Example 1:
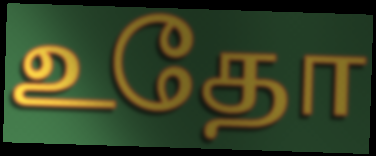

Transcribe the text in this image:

உதோ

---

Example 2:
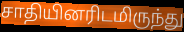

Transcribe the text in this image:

சாதியினரிடமிருந்து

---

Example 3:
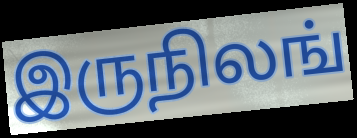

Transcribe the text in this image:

இருநிலங்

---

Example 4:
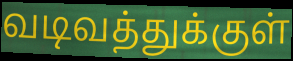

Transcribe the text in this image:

வடிவத்துக்குள்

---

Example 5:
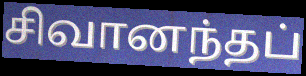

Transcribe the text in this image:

சிவானந்தப்